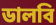
ডালবি